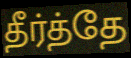
தீர்த்தே